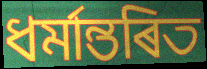
ধৰ্মান্তৰিত